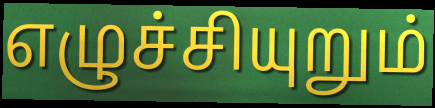
எழுச்சியுறும்